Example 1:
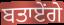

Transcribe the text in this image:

ਬਤਾਏਂਗੇ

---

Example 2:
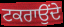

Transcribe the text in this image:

ਟਕਰਾਉਂਦੇ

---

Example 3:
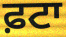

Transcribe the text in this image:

ਫ਼ਟਾ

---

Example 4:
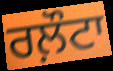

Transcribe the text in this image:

ਰਲ਼ੌਟਾ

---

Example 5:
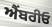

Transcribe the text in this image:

ਐੰਬਰੀਓ